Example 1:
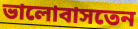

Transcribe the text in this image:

ভালোবাসতেন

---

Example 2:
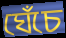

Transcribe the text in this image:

ঘেঁচে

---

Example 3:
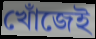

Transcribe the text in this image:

খোঁজেই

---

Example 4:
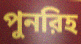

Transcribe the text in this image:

পুনরিহ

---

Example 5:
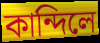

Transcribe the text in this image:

কান্দিলে